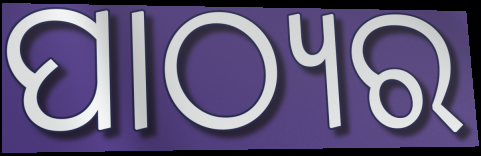
ପାଠ୍ୟର